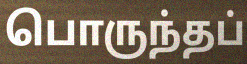
பொருந்தப்